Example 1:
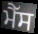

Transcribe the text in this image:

ਮੈੱਸ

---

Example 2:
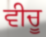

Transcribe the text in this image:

ਵੀਚੂ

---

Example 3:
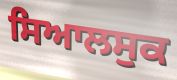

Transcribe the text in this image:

ਸਿਆਲਸੁਕ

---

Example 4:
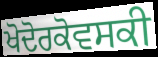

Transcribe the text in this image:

ਖੋਦੋਰਕੋਵਸਕੀ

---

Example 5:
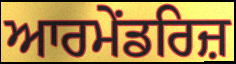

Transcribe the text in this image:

ਆਰਮੇਂਡਰਿਜ਼